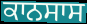
ਕਾਨਸਾਸ